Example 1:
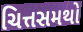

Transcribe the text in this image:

ચિત્તસમથો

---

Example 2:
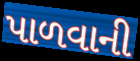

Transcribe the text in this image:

પાળવાની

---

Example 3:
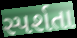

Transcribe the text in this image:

સ્પર્શતા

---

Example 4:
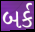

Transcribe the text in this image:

બર્ક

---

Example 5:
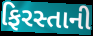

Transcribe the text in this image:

ફિરસ્તાની